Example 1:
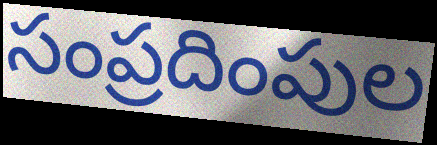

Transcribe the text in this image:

సంప్రదింపుల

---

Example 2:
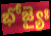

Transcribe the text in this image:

భోజ్యైః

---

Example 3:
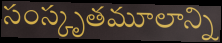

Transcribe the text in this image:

సంస్కృతమూలాన్ని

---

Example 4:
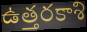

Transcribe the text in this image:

ఉత్తరకాశి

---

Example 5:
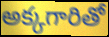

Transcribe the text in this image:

అక్కగారితో